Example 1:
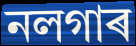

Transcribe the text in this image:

নলগাৰ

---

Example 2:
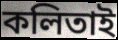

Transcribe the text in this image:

কলিতাই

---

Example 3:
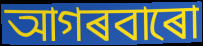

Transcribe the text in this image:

আগৰবাৰো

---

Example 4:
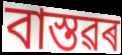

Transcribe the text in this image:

বাস্তৱৰ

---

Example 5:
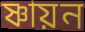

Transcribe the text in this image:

ষ্ণায়ন